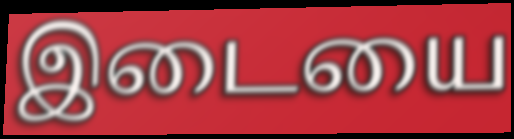
இடையை